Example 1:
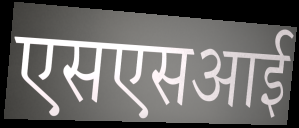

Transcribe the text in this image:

एसएसआई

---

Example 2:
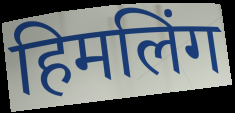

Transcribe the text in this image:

हिमलिंग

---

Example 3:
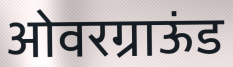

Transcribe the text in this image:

ओवरग्राऊंड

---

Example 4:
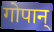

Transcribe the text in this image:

गोपान्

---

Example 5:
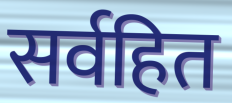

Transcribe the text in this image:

सर्वहित